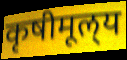
कृषीमूल्य